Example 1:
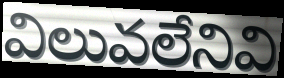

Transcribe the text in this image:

విలువలేనివి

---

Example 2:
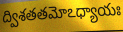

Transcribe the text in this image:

ద్విశతతమోఽధ్యాయః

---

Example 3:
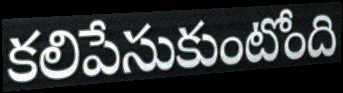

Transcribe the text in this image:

కలిపేసుకుంటోంది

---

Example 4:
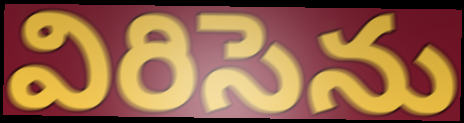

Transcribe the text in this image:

విరిసెను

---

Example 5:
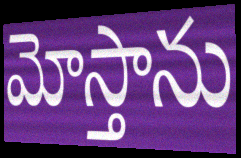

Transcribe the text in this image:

మోస్తాను